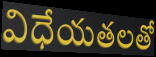
విధేయతలతో